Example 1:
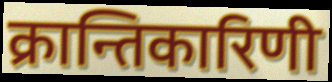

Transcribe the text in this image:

क्रान्तिकारिणी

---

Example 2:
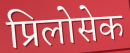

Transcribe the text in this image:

प्रिलोसेक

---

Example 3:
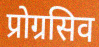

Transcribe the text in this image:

प्रोग्रसिव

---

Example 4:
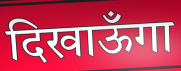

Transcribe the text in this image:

दिखाऊँगा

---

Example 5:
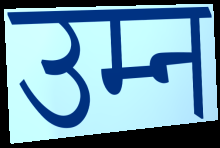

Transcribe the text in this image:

उम्न